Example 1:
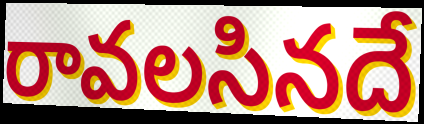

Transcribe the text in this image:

రావలసినదే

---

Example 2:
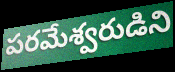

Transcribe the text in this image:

పరమేశ్వరుడిని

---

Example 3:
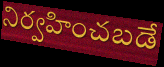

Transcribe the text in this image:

నిర్వహించబడే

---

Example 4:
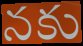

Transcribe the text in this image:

నకు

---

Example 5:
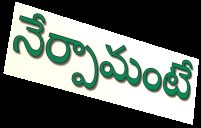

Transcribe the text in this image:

నేర్పామంటే